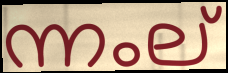
ന്നംല്